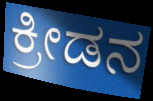
ಕ್ರೀಡನ